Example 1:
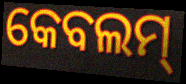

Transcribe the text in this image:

କେବଲମ୍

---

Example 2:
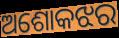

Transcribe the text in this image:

ଅଶୋକଝର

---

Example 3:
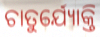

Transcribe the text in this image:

ଚାତୁର୍ଯ୍ୟୋକ୍ତି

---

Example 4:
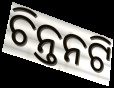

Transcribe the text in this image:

ଚିନ୍ତନଟି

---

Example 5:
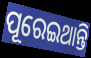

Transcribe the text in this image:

ପୂରେଇଥାନ୍ତି